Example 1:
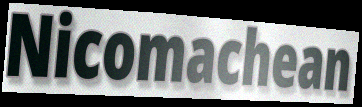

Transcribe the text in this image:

Nicomachean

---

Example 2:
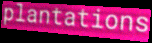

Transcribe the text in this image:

plantations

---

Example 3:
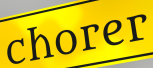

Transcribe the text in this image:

chorer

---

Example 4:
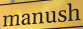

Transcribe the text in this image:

manush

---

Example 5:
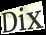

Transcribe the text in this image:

Dix